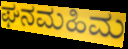
ಘನಮಹಿಮ